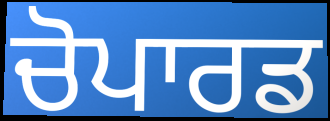
ਚੋਪਾਰਡ